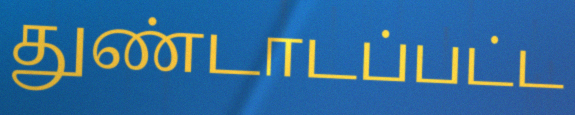
துண்டாடப்பட்ட